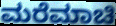
ಮರೆಮಾಚಿ